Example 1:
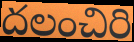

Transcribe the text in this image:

దలంచిరి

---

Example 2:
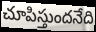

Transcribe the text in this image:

చూపిస్తుందనేది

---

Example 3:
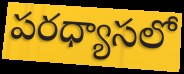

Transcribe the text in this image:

పరధ్యాసలో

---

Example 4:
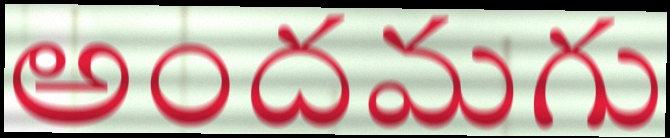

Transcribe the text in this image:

అందమగు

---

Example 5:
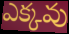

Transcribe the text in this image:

ఎక్కవు